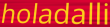
holadalli